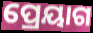
ପ୍ରେୟାଗ